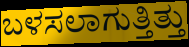
ಬಳಸಲಾಗುತ್ತಿತ್ತು